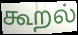
கூறல்